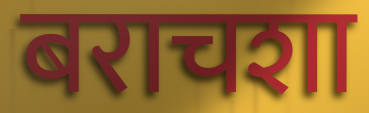
बराचशा